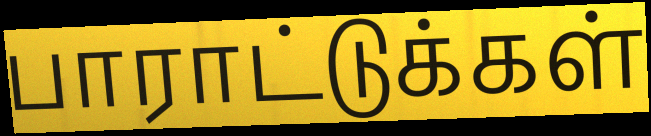
பாராட்டுக்கள்